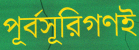
পূর্বসূরিগণই